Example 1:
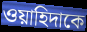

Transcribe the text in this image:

ওয়াহিদাকে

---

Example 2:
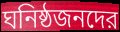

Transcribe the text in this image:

ঘনিষ্ঠজনদের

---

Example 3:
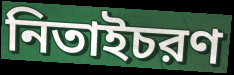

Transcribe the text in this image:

নিতাইচরণ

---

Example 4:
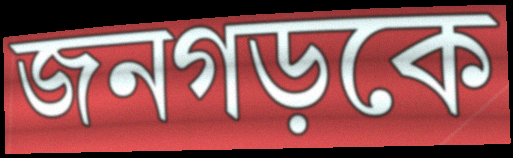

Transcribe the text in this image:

জনগড়কে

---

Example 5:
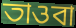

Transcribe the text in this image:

তাওবা